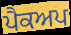
ਪੈਕਅਪ